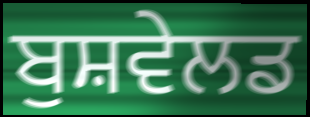
ਬੁਸ਼ਵੇਲਡ